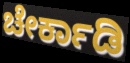
ಚೇರ್ಕಾಡಿ